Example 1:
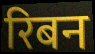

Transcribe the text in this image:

रिबन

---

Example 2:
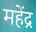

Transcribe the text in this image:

महेंद्र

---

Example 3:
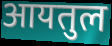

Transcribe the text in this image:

आयतुल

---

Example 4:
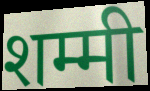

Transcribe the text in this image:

शम्मी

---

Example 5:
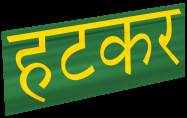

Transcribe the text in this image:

हटकर